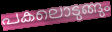
പകലൊടുങ്ങും